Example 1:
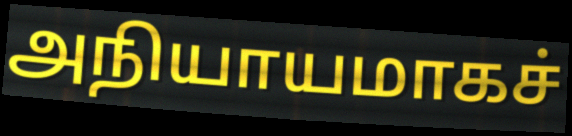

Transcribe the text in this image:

அநியாயமாகச்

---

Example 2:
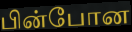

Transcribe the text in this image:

பின்போன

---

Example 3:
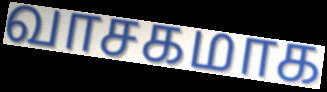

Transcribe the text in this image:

வாசகமாக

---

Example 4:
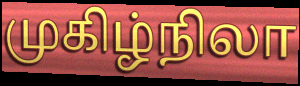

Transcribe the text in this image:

முகிழ்நிலா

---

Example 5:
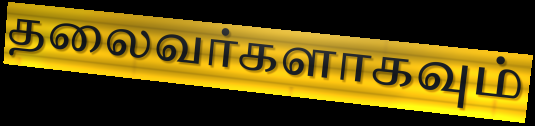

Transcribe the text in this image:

தலைவர்களாகவும்